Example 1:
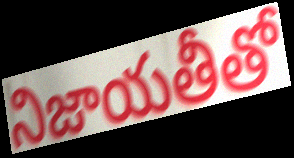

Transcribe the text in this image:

నిజాయతీతో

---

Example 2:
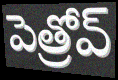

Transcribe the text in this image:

పెత్రోవ్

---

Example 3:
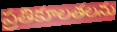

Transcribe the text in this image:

ప్రతికూలతలను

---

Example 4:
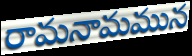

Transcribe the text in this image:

రామనామమున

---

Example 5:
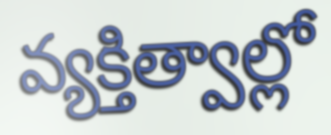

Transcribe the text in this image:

వ్యక్తిత్వాల్లో